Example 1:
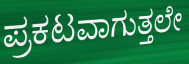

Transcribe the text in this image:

ಪ್ರಕಟವಾಗುತ್ತಲೇ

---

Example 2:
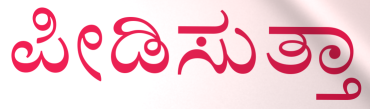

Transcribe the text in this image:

ಪೀಡಿಸುತ್ತಾ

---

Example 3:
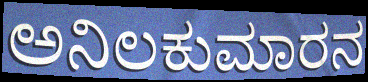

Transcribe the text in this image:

ಅನಿಲಕುಮಾರನ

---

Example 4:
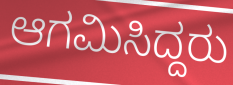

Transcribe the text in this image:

ಆಗಮಿಸಿದ್ದರು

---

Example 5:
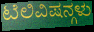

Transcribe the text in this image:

ಟೆಲಿವಿಷನ್ಗಳು